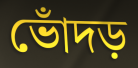
ভোঁদড়